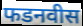
फडनवीस